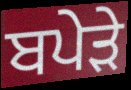
ਬਪੇੜੇ